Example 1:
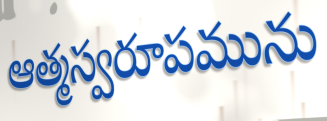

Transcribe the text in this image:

ఆత్మస్వరూపమును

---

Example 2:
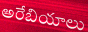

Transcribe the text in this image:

అరేబియాలు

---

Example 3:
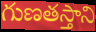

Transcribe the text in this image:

గుణతస్తాని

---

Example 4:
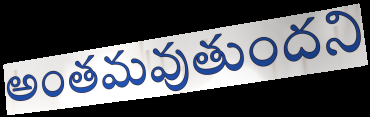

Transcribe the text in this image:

అంతమవుతుందని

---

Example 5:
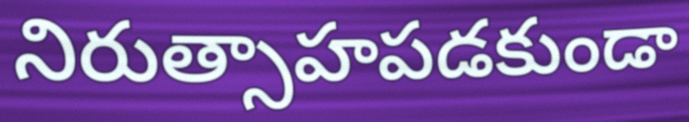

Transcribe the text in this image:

నిరుత్సాహపడకుండా